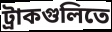
ট্রাকগুলিতে